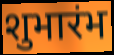
शुभारंभ